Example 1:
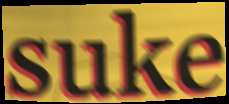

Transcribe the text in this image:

suke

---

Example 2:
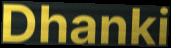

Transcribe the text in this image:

Dhanki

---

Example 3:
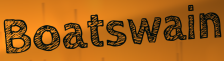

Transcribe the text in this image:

Boatswain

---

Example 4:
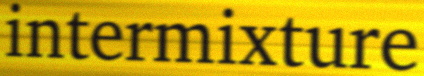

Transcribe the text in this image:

intermixture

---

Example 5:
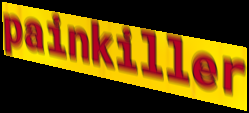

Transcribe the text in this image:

painkiller